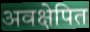
अवक्षेपित